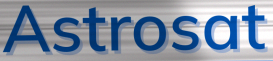
Astrosat